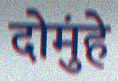
दोमुंहे